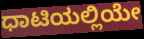
ಧಾಟಿಯಲ್ಲಿಯೇ